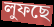
লুফছে